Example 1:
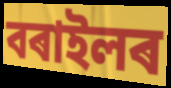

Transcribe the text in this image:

বৰাইলৰ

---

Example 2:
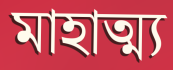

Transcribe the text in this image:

মাহাত্ম্য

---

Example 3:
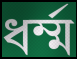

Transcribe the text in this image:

ধৰ্ম্ম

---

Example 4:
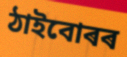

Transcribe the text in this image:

ঠাইবোৰৰ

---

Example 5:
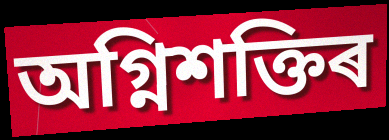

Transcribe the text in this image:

অগ্নিশক্তিৰ